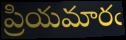
ప్రియమారఁ